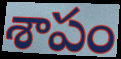
శాపం